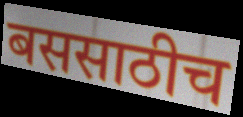
बससाठीच